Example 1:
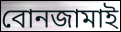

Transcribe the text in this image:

বোনজামাই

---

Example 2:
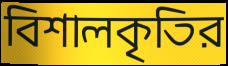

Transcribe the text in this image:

বিশালকৃতির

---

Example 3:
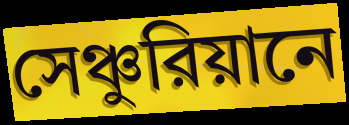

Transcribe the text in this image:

সেঞ্চুরিয়ানে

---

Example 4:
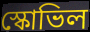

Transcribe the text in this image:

স্কোভিল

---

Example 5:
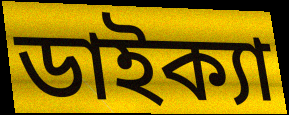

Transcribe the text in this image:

ডাইক্যা